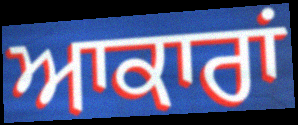
ਆਕਾਰਾਂ